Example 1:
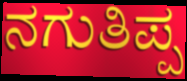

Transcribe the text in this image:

ನಗುತಿಪ್ಪ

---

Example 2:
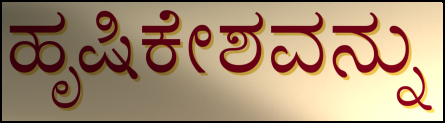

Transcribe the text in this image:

ಹೃಷಿಕೇಶವನ್ನು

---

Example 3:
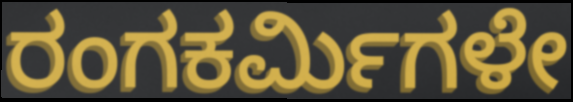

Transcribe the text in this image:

ರಂಗಕರ್ಮಿಗಳೇ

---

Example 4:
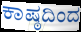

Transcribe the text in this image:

ಕಾಷ್ಠದಿಂದ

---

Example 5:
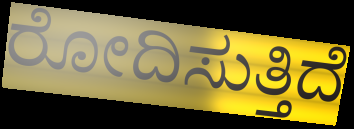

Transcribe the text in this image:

ರೋದಿಸುತ್ತಿದೆ